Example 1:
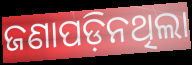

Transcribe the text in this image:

ଜଣାପଡ଼ିନଥିଲା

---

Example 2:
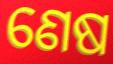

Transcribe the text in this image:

ଣେଷ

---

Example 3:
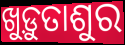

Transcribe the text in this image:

ଖୁଡ଼ୁତାଶୁର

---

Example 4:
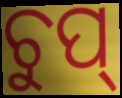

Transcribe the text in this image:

ଚୁପ୍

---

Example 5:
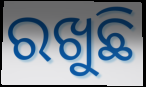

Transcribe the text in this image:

ରଖୁଛି